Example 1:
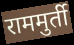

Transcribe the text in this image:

राममुर्ती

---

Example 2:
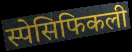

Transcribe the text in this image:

स्पेसिफिकली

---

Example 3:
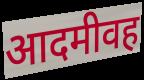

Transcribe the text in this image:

आदमीवह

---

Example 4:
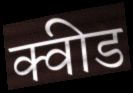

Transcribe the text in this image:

क्वीड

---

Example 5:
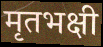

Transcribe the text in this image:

मृतभक्षी